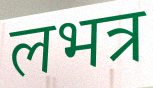
लभत्र